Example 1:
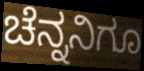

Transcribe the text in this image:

ಚೆನ್ನನಿಗೂ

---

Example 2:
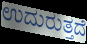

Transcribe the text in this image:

ಉದುರುತ್ತದೆ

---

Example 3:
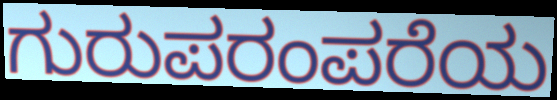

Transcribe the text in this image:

ಗುರುಪರಂಪರೆಯ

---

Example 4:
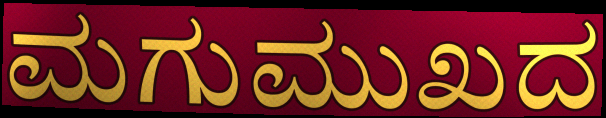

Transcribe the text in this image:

ಮಗುಮುಖದ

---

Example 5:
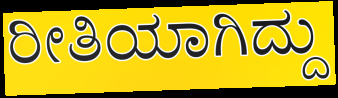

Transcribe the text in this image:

ರೀತಿಯಾಗಿದ್ದು